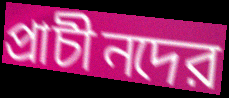
প্রাচীনদের